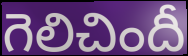
గెలిచిందీ